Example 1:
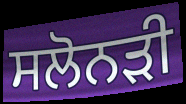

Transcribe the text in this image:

ਸਲੋਨੜੀ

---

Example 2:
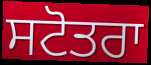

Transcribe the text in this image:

ਸਟੋਤਰਾ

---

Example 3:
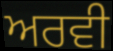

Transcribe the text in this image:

ਅਰਵੀ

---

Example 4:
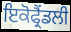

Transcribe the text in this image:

ਇਕੋਫ੍ਰੈਂਡਲੀ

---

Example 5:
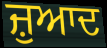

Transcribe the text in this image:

ਜ਼ੁਆਦ